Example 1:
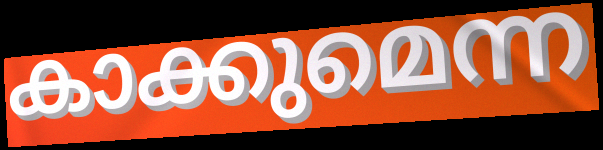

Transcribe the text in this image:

കാക്കുമെന്ന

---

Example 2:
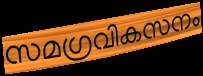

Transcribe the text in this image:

സമഗ്രവികസനം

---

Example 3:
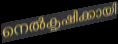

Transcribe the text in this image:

നെൽകൃഷിക്കായി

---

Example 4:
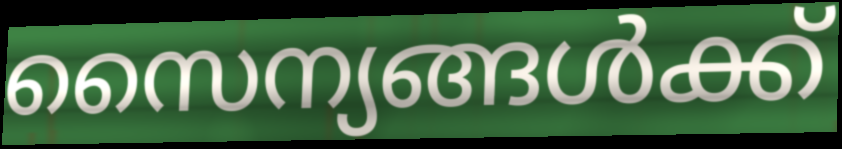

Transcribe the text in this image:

സൈന്യങ്ങൾക്ക്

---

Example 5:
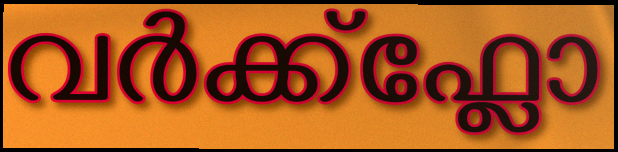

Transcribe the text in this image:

വർക്ക്ഫ്ലോ